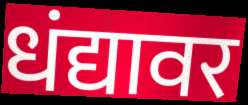
धंद्यावर